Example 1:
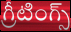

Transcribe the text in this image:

గ్రీటింగ్స్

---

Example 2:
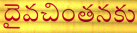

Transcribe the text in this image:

దైవచింతనకు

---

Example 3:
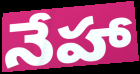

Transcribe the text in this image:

నేహా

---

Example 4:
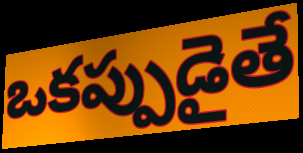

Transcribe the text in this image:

ఒకప్పుడైతే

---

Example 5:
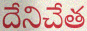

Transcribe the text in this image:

దేనిచేత